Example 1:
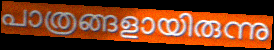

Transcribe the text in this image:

പാത്രങ്ങളായിരുന്നു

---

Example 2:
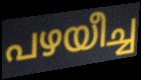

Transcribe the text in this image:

പഴയീച്ച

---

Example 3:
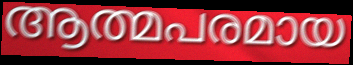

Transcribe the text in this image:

ആത്മപരമായ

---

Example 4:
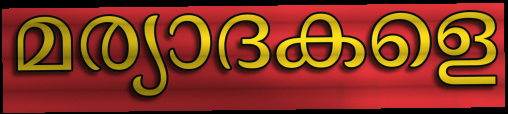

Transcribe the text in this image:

മര്യാദകളെ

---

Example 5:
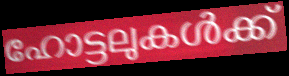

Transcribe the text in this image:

ഹോട്ടലുകൾക്ക്